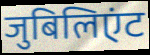
जुबिलिएंट